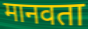
मानवता